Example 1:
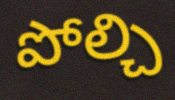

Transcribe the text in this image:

పోల్చి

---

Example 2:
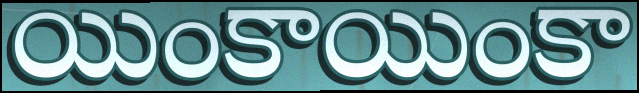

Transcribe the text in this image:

యింకాయింకా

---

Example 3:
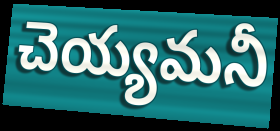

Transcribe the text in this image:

చెయ్యమనీ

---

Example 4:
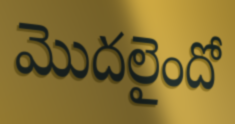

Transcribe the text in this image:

మొదలైందో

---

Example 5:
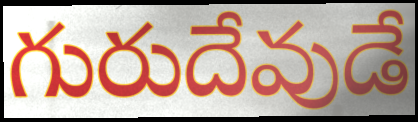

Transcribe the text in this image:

గురుదేవుడే